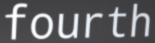
fourth